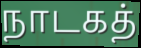
நாடகத்